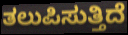
ತಲುಪಿಸುತ್ತಿದೆ